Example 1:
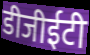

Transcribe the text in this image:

डीजीईटी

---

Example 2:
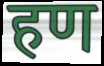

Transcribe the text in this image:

हण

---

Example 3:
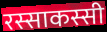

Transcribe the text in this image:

रस्साकस्सी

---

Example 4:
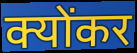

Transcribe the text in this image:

क्योंकर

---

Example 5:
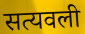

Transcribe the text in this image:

सत्यवली